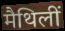
मैथिलीं